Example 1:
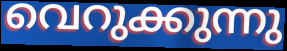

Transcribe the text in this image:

വെറുക്കുന്നു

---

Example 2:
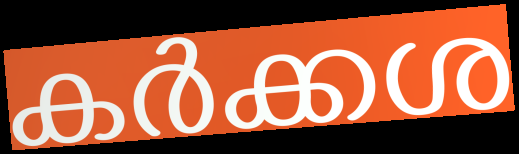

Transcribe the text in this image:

കർക്കശ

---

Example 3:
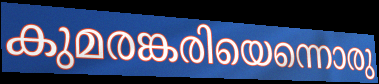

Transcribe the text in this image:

കുമരങ്കരിയെന്നൊരു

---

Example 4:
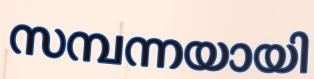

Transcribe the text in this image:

സമ്പന്നയായി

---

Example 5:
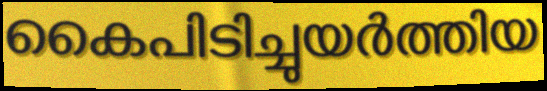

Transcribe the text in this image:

കൈപിടിച്ചുയർത്തിയ